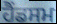
ਹੈਂਡਸਮ